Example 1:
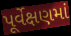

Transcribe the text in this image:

પૂર્વેક્ષણમાં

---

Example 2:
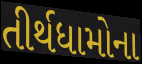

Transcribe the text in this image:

તીર્થધામોના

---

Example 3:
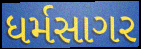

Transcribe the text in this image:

ધર્મસાગર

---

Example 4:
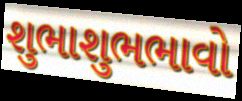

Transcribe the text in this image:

શુભાશુભભાવો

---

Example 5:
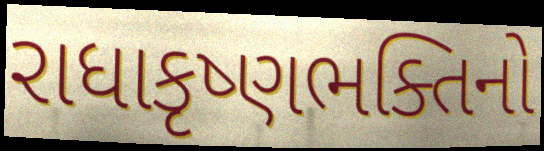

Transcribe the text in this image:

રાધાકૃષ્ણભક્તિનો